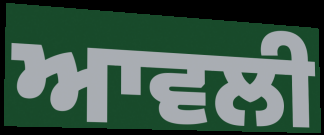
ਆਵਲੀ